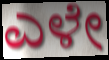
ಎಳೇ